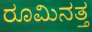
ರೂಮಿನತ್ತ